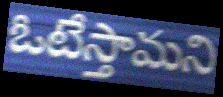
ఓటేస్తామని